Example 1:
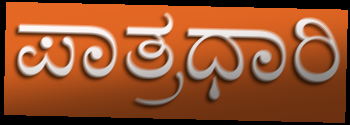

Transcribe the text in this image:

ಪಾತ್ರಧಾರಿ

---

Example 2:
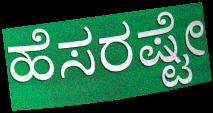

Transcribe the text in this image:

ಹೆಸರಷ್ಟೇ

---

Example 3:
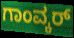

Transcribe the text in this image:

ಗಾಂವ್ಕರ್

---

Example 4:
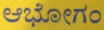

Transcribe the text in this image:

ಆಭೋಗಂ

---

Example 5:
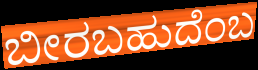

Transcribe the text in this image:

ಬೀರಬಹುದೆಂಬ